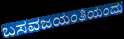
ಬಸವಜಯಂತಿಯಂದು